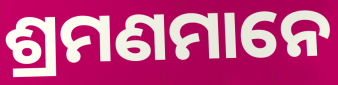
ଶ୍ରମଣମାନେ